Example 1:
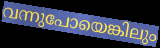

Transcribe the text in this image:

വന്നുപോയെങ്കിലും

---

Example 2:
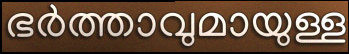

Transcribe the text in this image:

ഭർത്താവുമായുള്ള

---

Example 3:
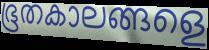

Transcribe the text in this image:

ഭൂതകാലങ്ങളെ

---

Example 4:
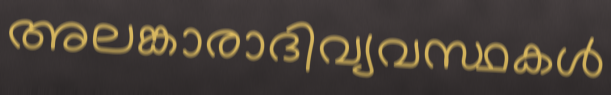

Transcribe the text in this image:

അലങ്കാരാദിവ്യവസ്ഥകൾ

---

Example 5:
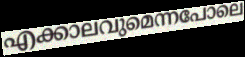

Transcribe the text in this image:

എക്കാലവുമെന്നപോലെ